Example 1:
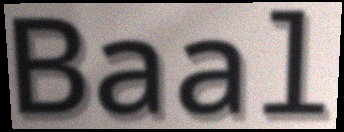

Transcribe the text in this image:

Baal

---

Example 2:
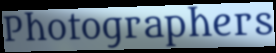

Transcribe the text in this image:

Photographers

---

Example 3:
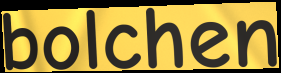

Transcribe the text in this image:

bolchen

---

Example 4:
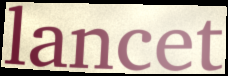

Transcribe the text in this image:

lancet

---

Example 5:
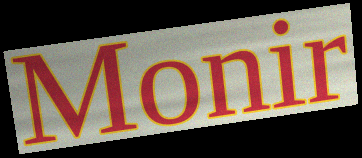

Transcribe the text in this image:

Monir